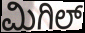
ಮಿಗಿಲ್